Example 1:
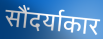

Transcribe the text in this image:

सौंदर्याकार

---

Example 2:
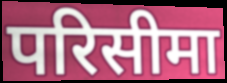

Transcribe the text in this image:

परिसीमा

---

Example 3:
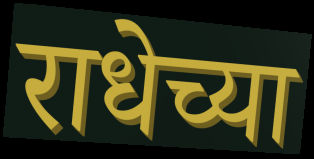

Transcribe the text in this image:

राधेच्या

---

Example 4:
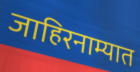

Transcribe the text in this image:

जाहिरनाम्यात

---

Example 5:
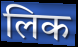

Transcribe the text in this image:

लिक